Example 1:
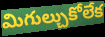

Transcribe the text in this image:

మిగుల్చుకోలేక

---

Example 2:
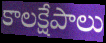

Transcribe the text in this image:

కాలక్షేపాలు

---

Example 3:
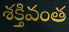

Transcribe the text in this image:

శక్తివంత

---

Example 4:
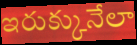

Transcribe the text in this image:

ఇరుక్కునేలా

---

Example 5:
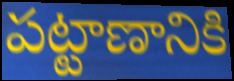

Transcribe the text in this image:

పట్టాణానికి